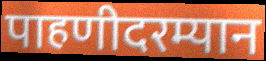
पाहणीदरम्यान